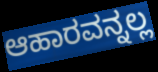
ಆಹಾರವನ್ನಲ್ಲ